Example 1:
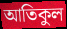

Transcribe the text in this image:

আতিকুল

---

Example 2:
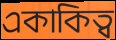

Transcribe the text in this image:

একাকিত্ব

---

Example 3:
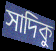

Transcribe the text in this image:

সাদিকু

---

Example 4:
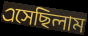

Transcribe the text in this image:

এসেছিলাম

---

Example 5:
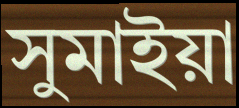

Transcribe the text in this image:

সুমাইয়া